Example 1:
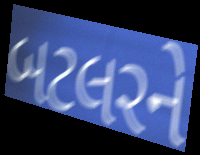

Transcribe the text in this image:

બટલરને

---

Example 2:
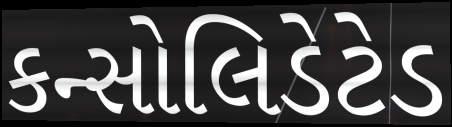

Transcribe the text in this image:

કન્સોલિડેટેડ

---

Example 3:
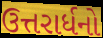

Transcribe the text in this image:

ઉત્તરાર્ધનો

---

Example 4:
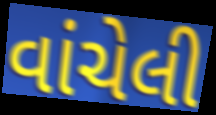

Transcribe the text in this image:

વાંચેલી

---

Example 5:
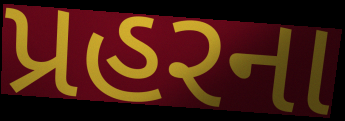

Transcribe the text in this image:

પ્રહરના